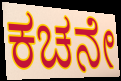
ಕಚನೇ